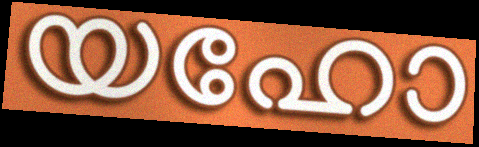
യഹോ